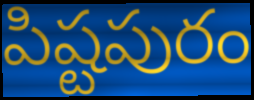
పిష్టపురం